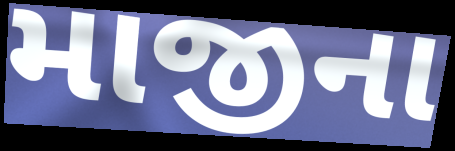
માજીના